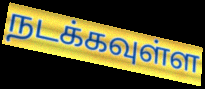
நடக்கவுள்ள